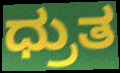
ಧ್ರುತ